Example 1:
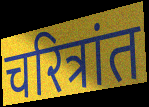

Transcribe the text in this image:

चरित्रांत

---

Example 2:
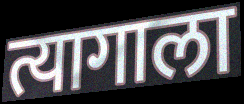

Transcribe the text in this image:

त्यागाला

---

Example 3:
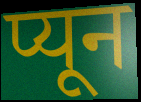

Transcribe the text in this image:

प्यून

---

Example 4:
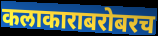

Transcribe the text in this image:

कलाकाराबरोबरच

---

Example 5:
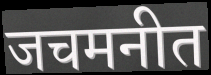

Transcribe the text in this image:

जचमनीत